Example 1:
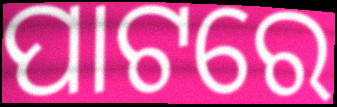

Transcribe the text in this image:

ପାଟରେ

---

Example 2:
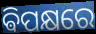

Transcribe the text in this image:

ଵିପକ୍ଷରେ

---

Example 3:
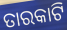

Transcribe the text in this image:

ତାରକାଟି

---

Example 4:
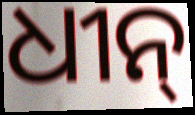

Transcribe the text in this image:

ଧୀନ୍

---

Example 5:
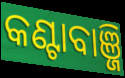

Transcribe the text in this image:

କଣ୍ଟାବାଞ୍ଜି